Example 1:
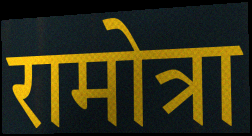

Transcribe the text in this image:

रामोत्रा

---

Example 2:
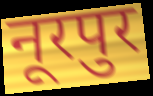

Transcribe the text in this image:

नूरपुर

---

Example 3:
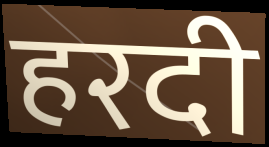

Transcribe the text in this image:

हरदी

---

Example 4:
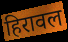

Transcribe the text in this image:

हिरावल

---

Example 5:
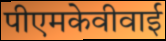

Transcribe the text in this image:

पीएमकेवीवाई